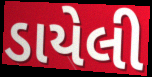
ડાયેલી